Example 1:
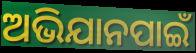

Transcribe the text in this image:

ଅଭିଯାନପାଇଁ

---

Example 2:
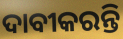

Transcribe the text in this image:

ଦାବୀକରନ୍ତି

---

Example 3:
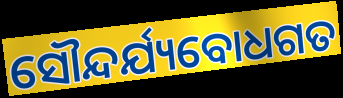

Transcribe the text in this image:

ସୌନ୍ଦର୍ଯ୍ୟବୋଧଗତ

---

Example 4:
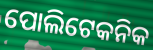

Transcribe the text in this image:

ପୋଲିଟେକନିକ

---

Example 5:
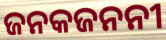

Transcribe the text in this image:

ଜନକଜନନୀ